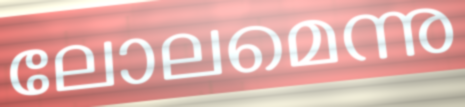
ലോലമെന്നു